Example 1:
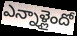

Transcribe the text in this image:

ఎన్నాళ్లైందో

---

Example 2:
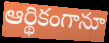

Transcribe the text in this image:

ఆర్థికంగానూ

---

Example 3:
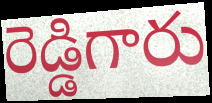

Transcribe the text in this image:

రెడ్డిగారు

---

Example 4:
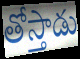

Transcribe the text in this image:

తోస్తాడు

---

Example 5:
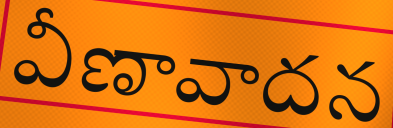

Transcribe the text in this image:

వీణావాదన